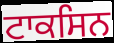
ਟਾਕਸਿਨ